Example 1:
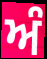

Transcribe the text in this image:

ਅੰ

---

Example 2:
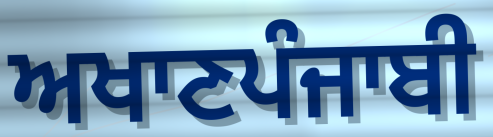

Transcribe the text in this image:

ਅਖਾਣਪੰਜਾਬੀ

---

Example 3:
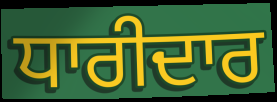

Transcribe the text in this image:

ਧਾਰੀਦਾਰ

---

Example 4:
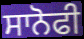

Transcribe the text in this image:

ਸਾਨੋਫੀ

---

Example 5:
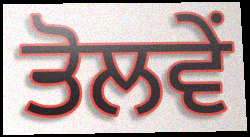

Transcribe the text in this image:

ਤੋਲਵੇਂ